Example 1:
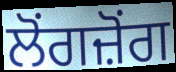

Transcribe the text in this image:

ਲੋਂਗਜ਼ੋਂਗ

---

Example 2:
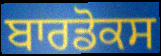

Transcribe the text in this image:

ਬਾਰਡੋਕਸ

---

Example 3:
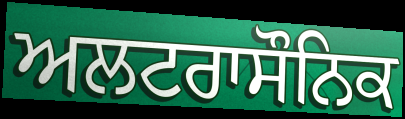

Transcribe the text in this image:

ਅਲਟਰਾਸੌਨਿਕ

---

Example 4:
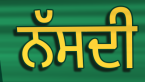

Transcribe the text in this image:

ਨੱਸਦੀ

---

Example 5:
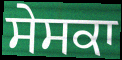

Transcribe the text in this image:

ਸੇਸਕਾ